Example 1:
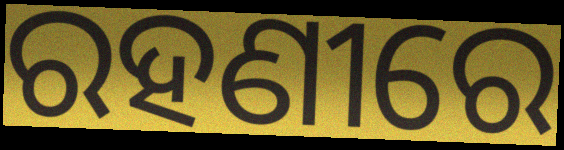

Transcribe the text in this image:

ରହଣୀରେ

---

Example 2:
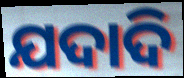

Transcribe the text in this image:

ଯଦାଦି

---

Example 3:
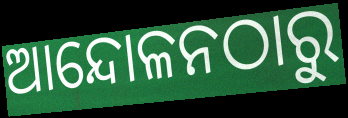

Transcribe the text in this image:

ଆନ୍ଦୋଳନଠାରୁ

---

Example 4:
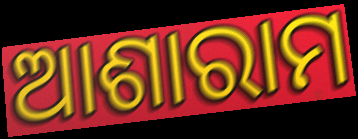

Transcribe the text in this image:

ଆଶାରାମ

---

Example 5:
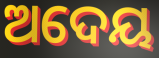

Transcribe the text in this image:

ଅଦେୟ